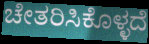
ಚೇತರಿಸಿಕೊಳ್ಳದೆ